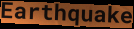
Earthquake